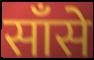
साँसे